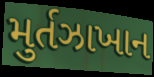
મુર્તઝાખાન